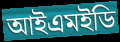
আইএমইডি